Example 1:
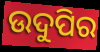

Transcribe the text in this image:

ଉଦୁପିର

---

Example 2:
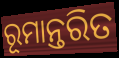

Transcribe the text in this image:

ରୂମାନ୍ତରିତ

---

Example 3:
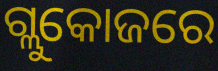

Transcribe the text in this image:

ଗ୍ଲୁକୋଜରେ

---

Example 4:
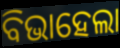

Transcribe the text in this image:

ବିଭାହେଲା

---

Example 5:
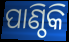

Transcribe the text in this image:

ପାଣ୍ଠିକି